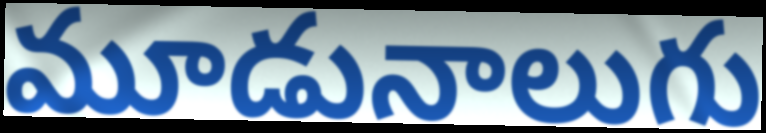
మూడునాలుగు